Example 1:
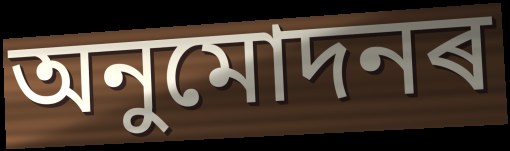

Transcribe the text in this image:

অনুমোদনৰ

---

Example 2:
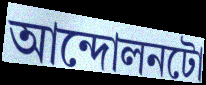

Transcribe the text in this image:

আন্দোলনটো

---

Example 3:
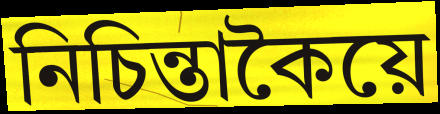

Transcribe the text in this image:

নিচিন্তাকৈয়ে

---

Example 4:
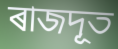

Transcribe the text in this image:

ৰাজদূত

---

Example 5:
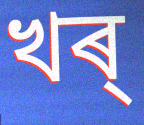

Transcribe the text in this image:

খৰ্